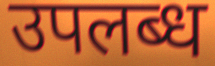
उपलब्ध